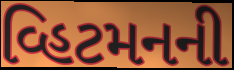
વ્હિટમનની